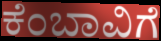
ಕೆಂಬಾವಿಗೆ